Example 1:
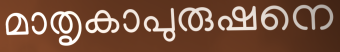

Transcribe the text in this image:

മാതൃകാപുരുഷനെ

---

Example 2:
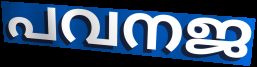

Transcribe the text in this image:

പവനജ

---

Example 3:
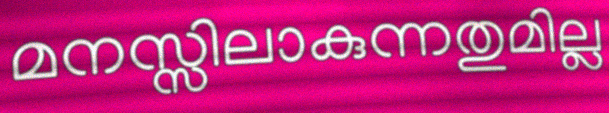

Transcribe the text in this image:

മനസ്സിലാകുന്നതുമില്ല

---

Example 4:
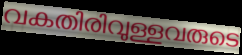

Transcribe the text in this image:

വകതിരിവുള്ളവരുടെ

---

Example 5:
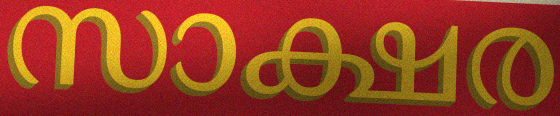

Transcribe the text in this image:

സാക്ഷര